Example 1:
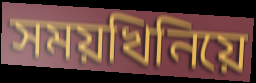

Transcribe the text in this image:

সময়খিনিয়ে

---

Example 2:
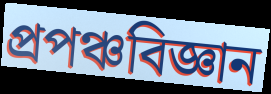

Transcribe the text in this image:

প্ৰপঞ্চবিজ্ঞান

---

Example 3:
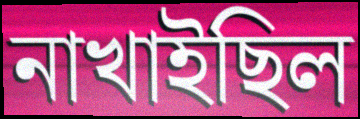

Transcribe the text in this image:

নাখাইছিল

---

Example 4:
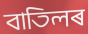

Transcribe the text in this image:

বাতিলৰ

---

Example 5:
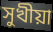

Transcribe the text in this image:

সুখীয়া